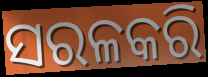
ସରଳକରି